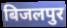
बिजलपुर